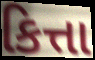
કિત્તા